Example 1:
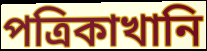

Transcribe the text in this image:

পত্রিকাখানি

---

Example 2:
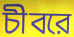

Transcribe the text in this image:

চীবরে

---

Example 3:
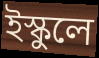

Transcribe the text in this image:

ইস্কুলে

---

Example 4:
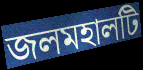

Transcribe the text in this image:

জলমহালটি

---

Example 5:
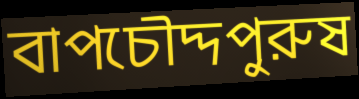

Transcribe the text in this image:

বাপচৌদ্দপুরুষ